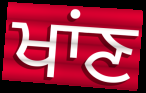
ਖਾਂਣ